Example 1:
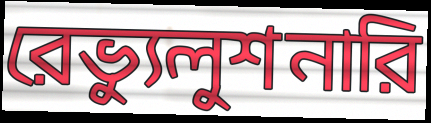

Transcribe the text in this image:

রেভ্যুলুশনারি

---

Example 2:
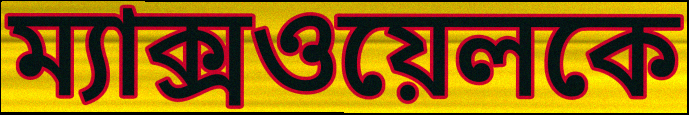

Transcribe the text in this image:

ম্যাক্সওয়েলকে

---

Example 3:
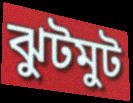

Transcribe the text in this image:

ঝুটমুট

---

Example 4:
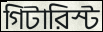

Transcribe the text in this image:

গিটারিস্ট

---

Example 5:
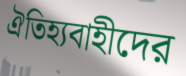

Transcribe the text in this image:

ঐতিহ্যবাহীদের